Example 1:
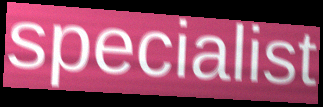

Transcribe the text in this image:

specialist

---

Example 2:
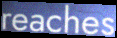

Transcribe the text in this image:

reaches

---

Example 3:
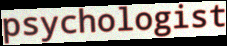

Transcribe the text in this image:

psychologist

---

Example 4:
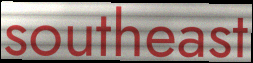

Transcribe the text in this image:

southeast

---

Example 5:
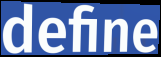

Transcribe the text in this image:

define